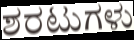
ಶರಟುಗಳು